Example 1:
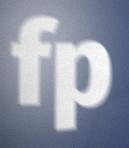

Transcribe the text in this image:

fp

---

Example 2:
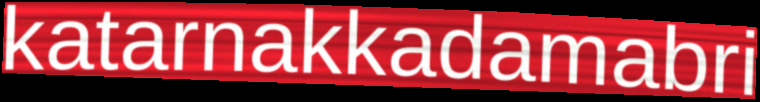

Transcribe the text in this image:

katarnakkadamabri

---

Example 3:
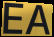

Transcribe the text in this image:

EA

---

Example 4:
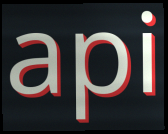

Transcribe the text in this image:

api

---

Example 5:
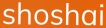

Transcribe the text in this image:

shoshai